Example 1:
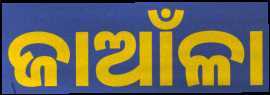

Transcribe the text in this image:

ଜାଆଁଳା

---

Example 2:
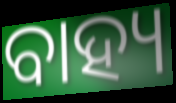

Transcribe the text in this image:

ବାହ୍ୟ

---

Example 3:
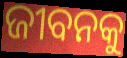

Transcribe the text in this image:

ଜୀବନକୁ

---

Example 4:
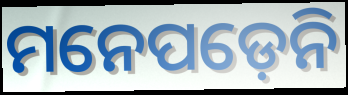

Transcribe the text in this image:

ମନେପଡ଼େନି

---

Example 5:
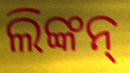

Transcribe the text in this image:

ଲିଙ୍କନ୍